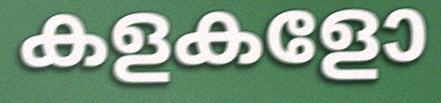
കളകളോ